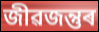
জীৱজন্তুৰ